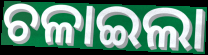
ଚଳାଇଲା